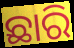
ଛାରି